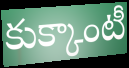
కుక్కాంటీ